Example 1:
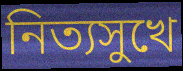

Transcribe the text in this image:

নিত্যসুখে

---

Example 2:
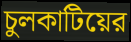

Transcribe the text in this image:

চুলকাটিয়ের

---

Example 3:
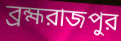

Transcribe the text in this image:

ব্রহ্মরাজপুর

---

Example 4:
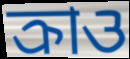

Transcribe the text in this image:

ক্রাও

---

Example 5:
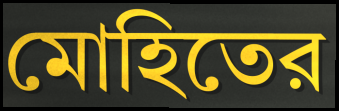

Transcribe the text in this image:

মোহিতের